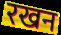
रखन